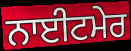
ਨਾਈਟਮੇਰ